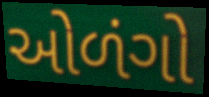
ઓળંગો